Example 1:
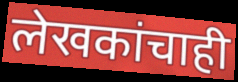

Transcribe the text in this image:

लेखकांचाही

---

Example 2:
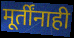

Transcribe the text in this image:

मूर्तींनाही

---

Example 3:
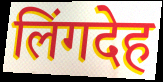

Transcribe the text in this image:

लिंगदेह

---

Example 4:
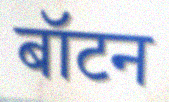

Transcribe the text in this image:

बॉटन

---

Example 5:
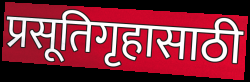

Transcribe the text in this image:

प्रसूतिगृहासाठी